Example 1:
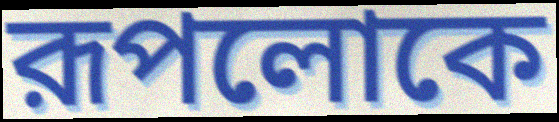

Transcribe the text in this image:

রূপলোকে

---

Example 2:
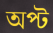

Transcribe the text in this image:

অপ্ট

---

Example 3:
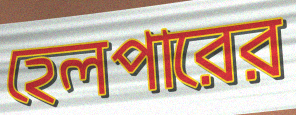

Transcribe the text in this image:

হেলপারের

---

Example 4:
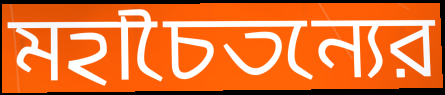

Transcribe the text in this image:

মহাচৈতন্যের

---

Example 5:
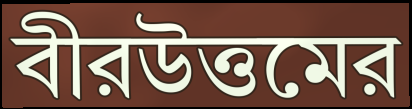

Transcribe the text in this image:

বীরউত্তমের